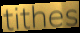
tithes